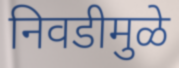
निवडीमुळे